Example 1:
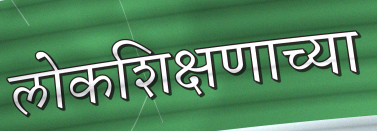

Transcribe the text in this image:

लोकशिक्षणाच्या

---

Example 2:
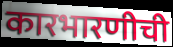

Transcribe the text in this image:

कारभारणीची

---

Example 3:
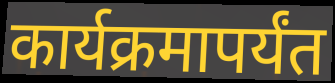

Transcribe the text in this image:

कार्यक्रमापर्यंत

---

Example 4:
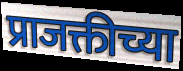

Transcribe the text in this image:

प्राजक्तीच्या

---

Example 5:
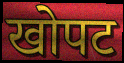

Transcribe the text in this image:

खोपट